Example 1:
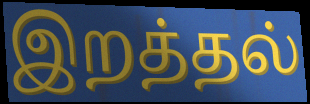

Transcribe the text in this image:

இறத்தல்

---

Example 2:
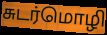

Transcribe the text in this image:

சுடர்மொழி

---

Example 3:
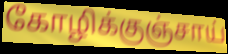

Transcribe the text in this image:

கோழிக்குஞ்சாய்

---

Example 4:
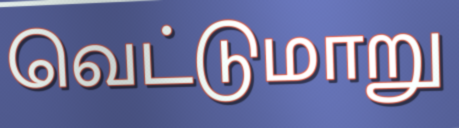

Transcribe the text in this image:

வெட்டுமாறு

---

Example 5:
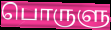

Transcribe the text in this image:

பொருளு